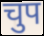
चुप